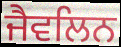
ਜੈਵਲਿਨ